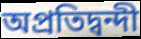
অপ্ৰতিদ্বন্দী